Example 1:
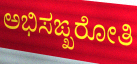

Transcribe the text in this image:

ಅಭಿಸಙ್ಖರೋತಿ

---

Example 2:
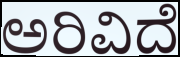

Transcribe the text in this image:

ಅರಿವಿದೆ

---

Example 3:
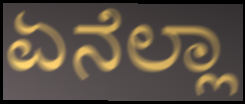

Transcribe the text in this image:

ಏನೆಲ್ಲಾ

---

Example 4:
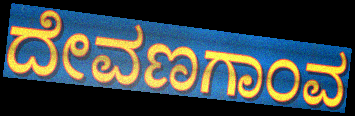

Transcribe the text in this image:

ದೇವಣಗಾಂವ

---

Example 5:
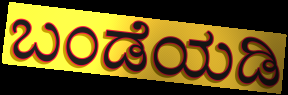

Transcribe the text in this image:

ಬಂಡೆಯಡಿ